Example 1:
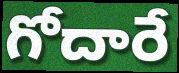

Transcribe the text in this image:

గోదారే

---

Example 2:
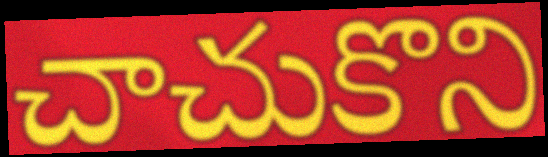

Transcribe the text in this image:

చాచుకొని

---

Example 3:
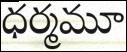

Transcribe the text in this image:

ధర్మమూ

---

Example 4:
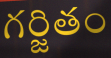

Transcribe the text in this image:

గర్జితం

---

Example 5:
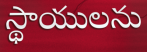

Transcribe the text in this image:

స్థాయులను